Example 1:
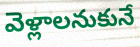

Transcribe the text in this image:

వెళ్లాలనుకునే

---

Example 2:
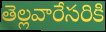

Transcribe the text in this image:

తెల్లవారేసరికి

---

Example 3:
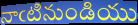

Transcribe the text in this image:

నాఁటినుండియు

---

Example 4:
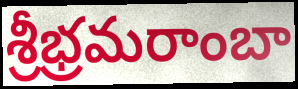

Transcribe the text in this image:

శ్రీభ్రమరాంబా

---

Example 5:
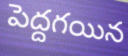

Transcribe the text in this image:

పెద్దగయిన